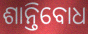
ଶାନ୍ତିବୋଧ